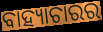
ବାହ୍ୟାଚାରର